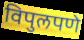
विपुलपणे